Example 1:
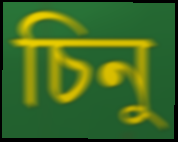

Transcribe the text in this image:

চিনু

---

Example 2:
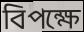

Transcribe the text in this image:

বিপক্ষে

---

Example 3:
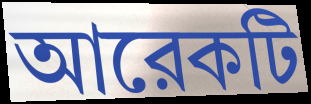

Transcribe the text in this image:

আরেকটি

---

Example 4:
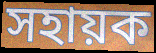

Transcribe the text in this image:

সহায়ক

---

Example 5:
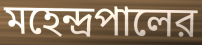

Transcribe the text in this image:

মহেন্দ্রপালের